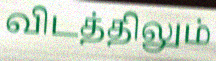
விடத்திலும்